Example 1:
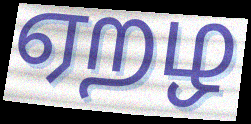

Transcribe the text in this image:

ஏறழ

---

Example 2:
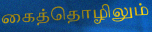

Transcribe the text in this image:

கைத்தொழிலும்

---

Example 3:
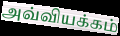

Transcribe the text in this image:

அவ்வியக்கம்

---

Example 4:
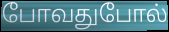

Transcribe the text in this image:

போவதுபோல்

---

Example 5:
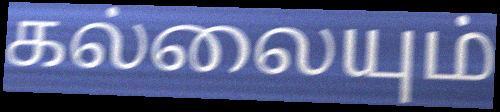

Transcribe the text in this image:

கல்லையும்